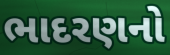
ભાદરણનો